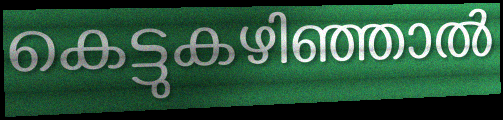
കെട്ടുകഴിഞ്ഞാൽ